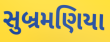
સુબ્રમણિયા